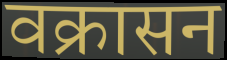
वक्रासन